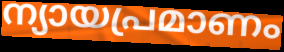
ന്യായപ്രമാണം